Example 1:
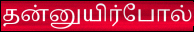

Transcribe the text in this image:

தன்னுயிர்போல்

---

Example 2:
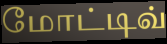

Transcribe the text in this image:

மோட்டிவ்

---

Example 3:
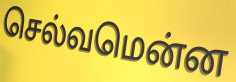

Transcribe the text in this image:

செல்வமென்ன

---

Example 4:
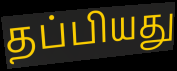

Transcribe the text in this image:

தப்பியது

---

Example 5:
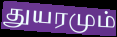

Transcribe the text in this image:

துயரமும்